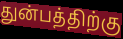
துன்பத்திற்கு